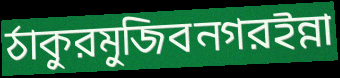
ঠাকুরমুজিবনগরইন্না